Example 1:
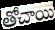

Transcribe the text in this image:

తోచాయి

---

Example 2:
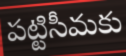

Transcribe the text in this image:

పట్టిసీమకు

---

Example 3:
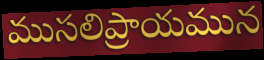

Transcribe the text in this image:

ముసలిప్రాయమున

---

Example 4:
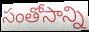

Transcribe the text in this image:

సంతోసాన్ని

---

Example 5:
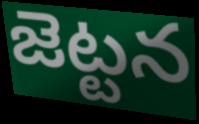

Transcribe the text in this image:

జెట్టన